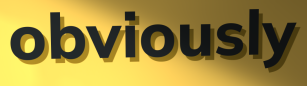
obviously